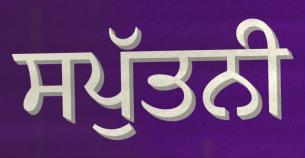
ਸਪੁੱਤਨੀ